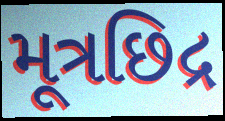
મૂત્રછિદ્ર